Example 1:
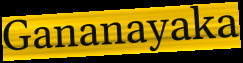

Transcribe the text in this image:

Gananayaka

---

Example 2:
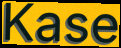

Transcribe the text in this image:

Kase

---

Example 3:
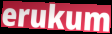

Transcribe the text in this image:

erukum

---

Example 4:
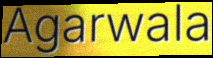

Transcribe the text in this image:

Agarwala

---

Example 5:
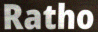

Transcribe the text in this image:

Ratho